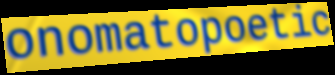
onomatopoetic